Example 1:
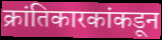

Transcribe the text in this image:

क्रांतिकारकांकडून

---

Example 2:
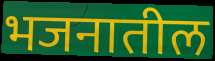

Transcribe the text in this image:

भजनातील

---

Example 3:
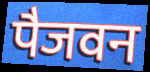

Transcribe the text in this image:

पैजवन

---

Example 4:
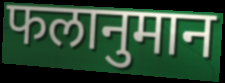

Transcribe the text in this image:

फलानुमान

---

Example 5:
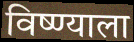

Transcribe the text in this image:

विष्ण्याला